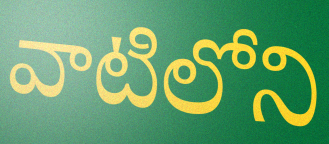
వాటిలోని